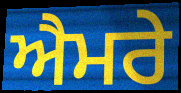
ਐਮਰੇ